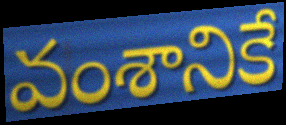
వంశానికే